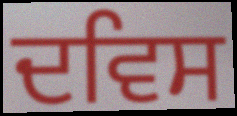
ਦਵਿਸ